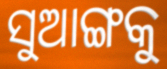
ସୁଆଙ୍ଗକୁ